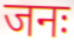
जनः